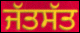
ਜੱਤਸੱਤ